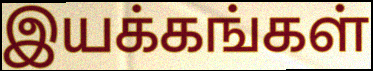
இயக்கங்கள்